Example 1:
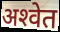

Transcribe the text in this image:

अश्‍वेत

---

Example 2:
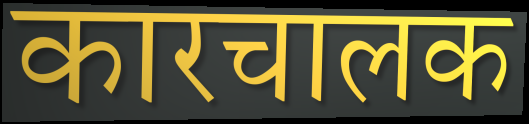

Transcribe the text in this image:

कारचालक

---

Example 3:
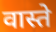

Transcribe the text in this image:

वास्ते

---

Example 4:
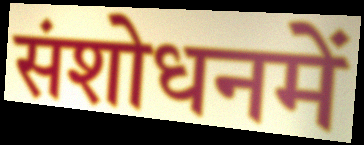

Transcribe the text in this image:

संशोधनमें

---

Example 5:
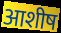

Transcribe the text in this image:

आशीष